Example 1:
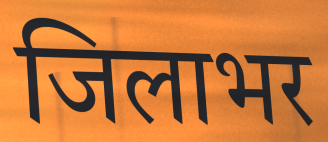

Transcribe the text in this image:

जिलाभर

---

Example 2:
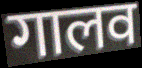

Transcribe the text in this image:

गालव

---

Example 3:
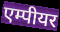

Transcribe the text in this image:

एम्पीयर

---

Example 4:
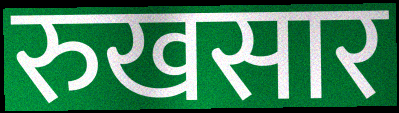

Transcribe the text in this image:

रुखसार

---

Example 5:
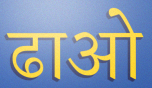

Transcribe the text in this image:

ढाओ